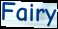
Fairy